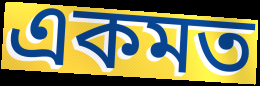
একমত